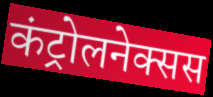
कंट्रोलनेक्सस